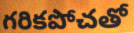
గరికపోచతో